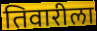
तिवारीला